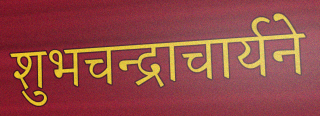
शुभचन्द्राचार्यने